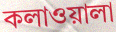
কলাওয়ালা